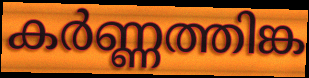
കർണ്ണത്തിങ്ക